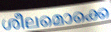
ശീലമൊക്കെ